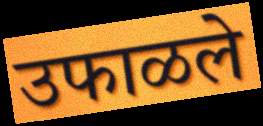
उफाळले